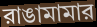
রাঙামামার